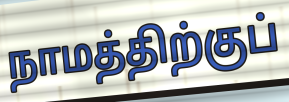
நாமத்திற்குப்